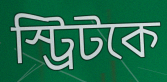
স্ট্রিটকে